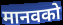
मानवको